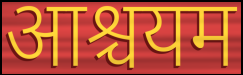
आश्चयम